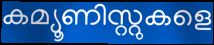
കമ്യൂണിസ്റ്റുകളെ